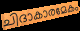
ചിദാകാരമേകം